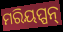
ମରିୟପ୍ପନ୍